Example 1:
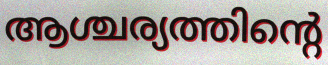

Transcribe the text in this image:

ആശ്ചര്യത്തിന്റെ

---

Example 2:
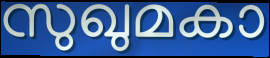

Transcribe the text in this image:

സുഖുമകാ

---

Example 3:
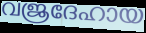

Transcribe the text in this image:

വജ്രദേഹായ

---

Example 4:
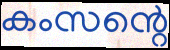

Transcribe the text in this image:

കംസന്റെ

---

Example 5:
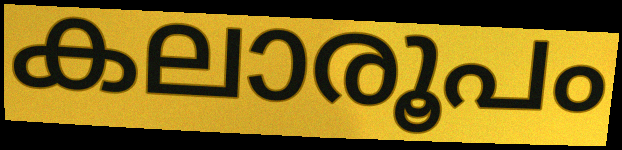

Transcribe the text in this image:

കലാരൂപം